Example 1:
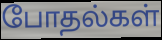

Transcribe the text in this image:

போதல்கள்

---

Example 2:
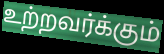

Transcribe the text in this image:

உற்றவர்க்கும்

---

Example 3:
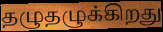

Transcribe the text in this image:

தழுதழுக்கிறது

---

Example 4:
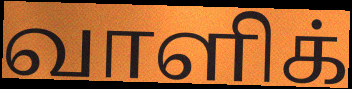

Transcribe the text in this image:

வாளிக்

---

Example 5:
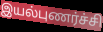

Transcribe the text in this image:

இயல்புணர்ச்சி